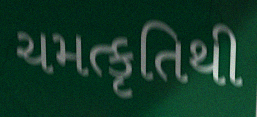
ચમત્કૃતિથી